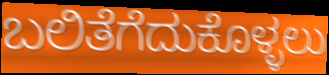
ಬಲಿತೆಗೆದುಕೊಳ್ಳಲು